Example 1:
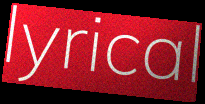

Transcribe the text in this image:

lyrical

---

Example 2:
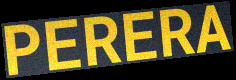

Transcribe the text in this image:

PERERA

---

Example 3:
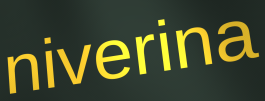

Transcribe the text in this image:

niverina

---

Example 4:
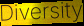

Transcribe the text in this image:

Diversity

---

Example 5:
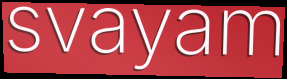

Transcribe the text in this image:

svayam